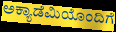
ಅಕ್ಯಾಡೆಮಿಯೊಂದಿಗೆ